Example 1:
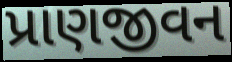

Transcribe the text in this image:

પ્રાણજીવન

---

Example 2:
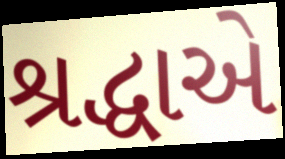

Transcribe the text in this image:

શ્રદ્ધાએ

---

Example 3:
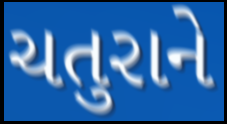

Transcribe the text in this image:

ચતુરાને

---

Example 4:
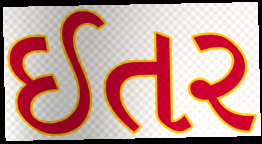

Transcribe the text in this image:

ઈતર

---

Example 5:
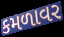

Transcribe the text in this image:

કમળાવર